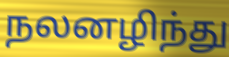
நலனழிந்து